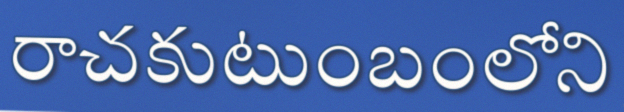
రాచకుటుంబంలోని